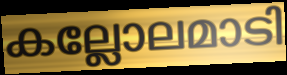
കല്ലോലമാടി